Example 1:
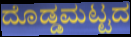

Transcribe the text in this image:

ದೊಡ್ಡಮಟ್ಟದ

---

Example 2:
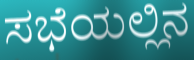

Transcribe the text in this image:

ಸಭೆಯಲ್ಲಿನ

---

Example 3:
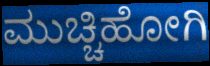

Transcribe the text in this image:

ಮುಚ್ಚಿಹೋಗಿ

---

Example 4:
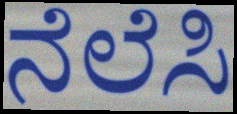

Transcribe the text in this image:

ನೆಲೆಸಿ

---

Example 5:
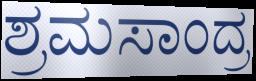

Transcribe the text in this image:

ಶ್ರಮಸಾಂದ್ರ